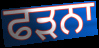
ਫੜਨਾ